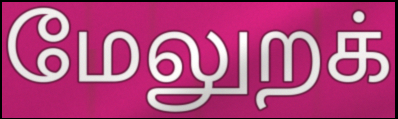
மேலுறக்